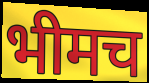
भीमच